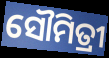
ସୌମିତ୍ରୀ